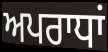
ਅਪਰਾਧਾਂ